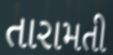
તારામતી